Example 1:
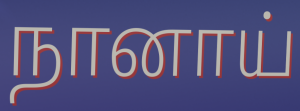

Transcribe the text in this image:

நானாய்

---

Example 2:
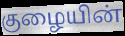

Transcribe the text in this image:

குழையின்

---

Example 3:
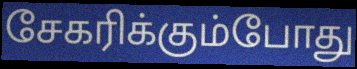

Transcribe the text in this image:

சேகரிக்கும்போது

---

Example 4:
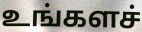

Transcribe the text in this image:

உங்களச்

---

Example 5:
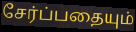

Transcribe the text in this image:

சேர்ப்பதையும்